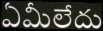
ఏమీలేదు